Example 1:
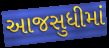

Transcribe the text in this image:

આજસુધીમાં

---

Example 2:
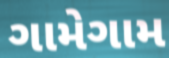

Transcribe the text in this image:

ગામેગામ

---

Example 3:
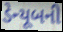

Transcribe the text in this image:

ડેન્યૂબની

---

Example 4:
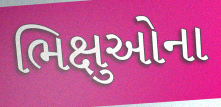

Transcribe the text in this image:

ભિક્ષુઓના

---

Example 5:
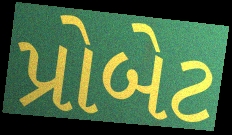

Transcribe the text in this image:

પ્રોબેટ